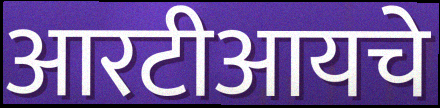
आरटीआयचे